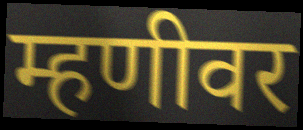
म्हणीवर